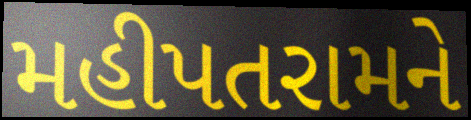
મહીપતરામને